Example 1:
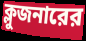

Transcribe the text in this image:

ক্লুজনারের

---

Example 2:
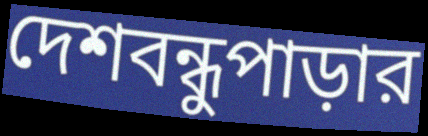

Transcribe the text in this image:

দেশবন্ধুপাড়ার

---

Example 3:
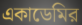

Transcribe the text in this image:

একাডেমির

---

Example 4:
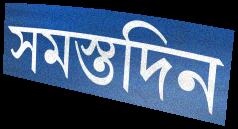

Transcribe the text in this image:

সমস্তদিন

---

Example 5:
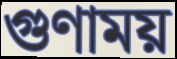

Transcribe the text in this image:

গুণাময়